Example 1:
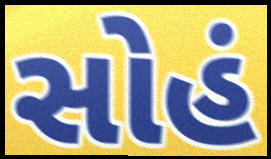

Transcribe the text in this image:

સોહં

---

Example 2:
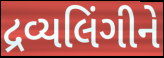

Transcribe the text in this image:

દ્રવ્યલિંગીને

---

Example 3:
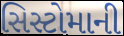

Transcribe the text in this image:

સિસ્ટોમાની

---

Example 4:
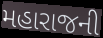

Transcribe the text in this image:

મહારાજની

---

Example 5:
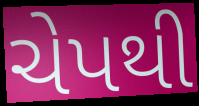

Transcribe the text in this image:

ચેપથી